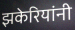
झकेरियांनी